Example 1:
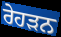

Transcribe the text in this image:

ਰੇਹੜਨ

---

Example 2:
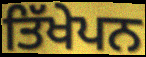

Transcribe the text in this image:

ਤਿੱਖੇਪਨ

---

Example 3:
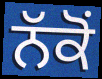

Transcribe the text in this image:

ਨੱਕੋਂ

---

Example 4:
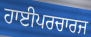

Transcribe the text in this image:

ਹਾਈਪਰਚਾਰਜ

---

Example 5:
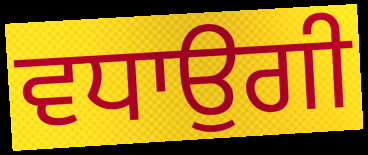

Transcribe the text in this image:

ਵਧਾਉਗੀ